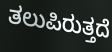
ತಲುಪಿರುತ್ತದೆ